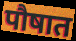
पौषात